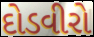
દોડવીરો